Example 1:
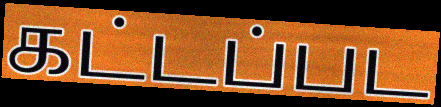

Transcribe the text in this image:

கட்டப்பட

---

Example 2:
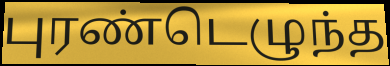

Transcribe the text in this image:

புரண்டெழுந்த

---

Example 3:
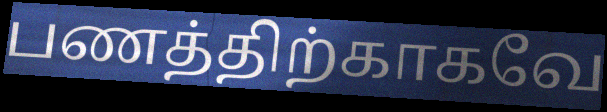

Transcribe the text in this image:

பணத்திற்காகவே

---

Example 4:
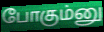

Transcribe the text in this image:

போகும்னு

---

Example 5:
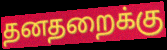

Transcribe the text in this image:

தனதறைக்கு